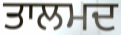
ਤਾਲਮਦ